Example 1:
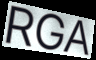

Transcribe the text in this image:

RGA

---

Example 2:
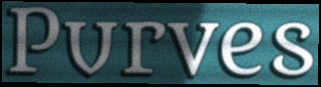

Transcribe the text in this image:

Purves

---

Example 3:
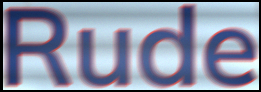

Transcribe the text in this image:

Rude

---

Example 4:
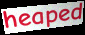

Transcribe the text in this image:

heaped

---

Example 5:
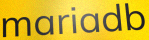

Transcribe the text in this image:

mariadb